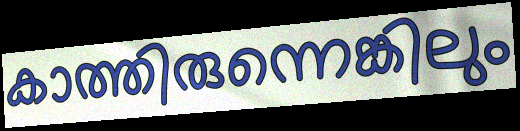
കാത്തിരുന്നെങ്കിലും